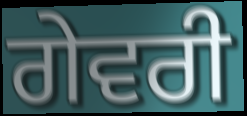
ਗੇਵਰੀ